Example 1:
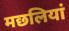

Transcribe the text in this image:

मछलियां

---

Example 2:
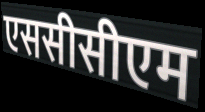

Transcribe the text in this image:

एससीसीएम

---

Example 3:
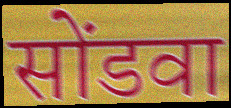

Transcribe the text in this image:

सोंडवा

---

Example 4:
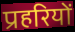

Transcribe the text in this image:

प्रहरियों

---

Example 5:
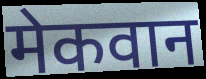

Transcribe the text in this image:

मेकवान